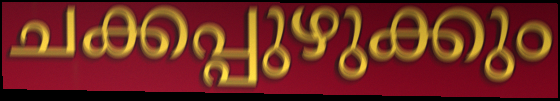
ചക്കപ്പുഴുക്കും